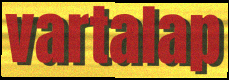
vartalap